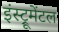
इंस्ट्रूमेंटल